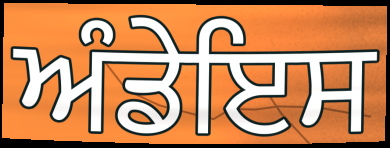
ਅੰਡੇਇਸ